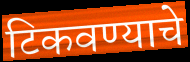
टिकवण्याचे